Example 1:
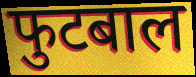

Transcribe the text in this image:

फुटबाल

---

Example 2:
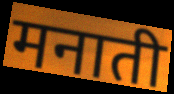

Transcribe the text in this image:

मनाती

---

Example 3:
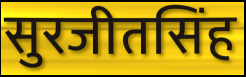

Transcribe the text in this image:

सुरजीतसिंह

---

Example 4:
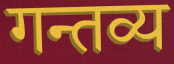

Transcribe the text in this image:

गन्तव्य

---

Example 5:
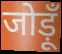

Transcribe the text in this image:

जोड़ूँ